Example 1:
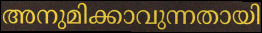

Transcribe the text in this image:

അനുമിക്കാവുന്നതായി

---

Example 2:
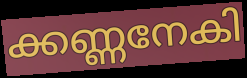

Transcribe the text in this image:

ക്കണ്ണനേകി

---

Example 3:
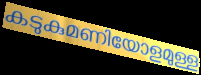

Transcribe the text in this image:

കടുകുമണിയോളമുള്ള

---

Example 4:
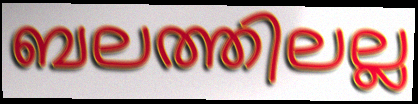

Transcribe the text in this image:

ബലത്തിലല്ല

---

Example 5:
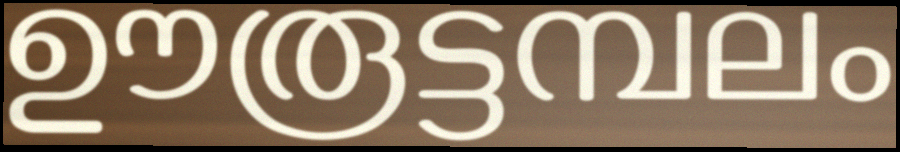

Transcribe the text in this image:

ഊരൂട്ടമ്പലം